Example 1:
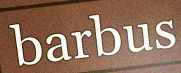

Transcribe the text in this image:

barbus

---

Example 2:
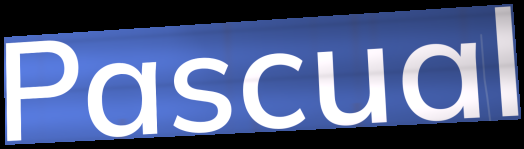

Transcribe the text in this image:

Pascual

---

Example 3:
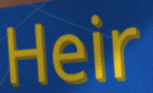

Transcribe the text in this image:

Heir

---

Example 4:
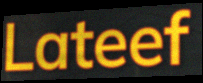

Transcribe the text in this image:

Lateef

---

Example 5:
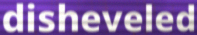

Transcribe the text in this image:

disheveled